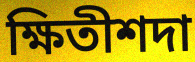
ক্ষিতীশদা